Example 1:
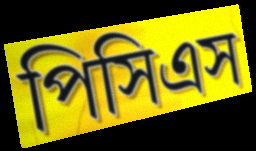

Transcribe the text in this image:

পিসিএস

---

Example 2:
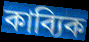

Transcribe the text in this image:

কাব্যিক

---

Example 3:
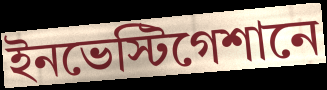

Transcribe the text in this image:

ইনভেস্টিগেশানে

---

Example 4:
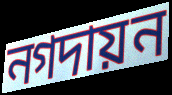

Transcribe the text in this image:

নগদায়ন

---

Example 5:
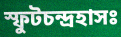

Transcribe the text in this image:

স্ফুটচন্দ্রহাসঃ